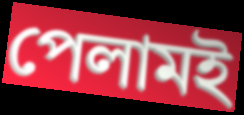
পেলামই